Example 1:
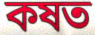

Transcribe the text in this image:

কষত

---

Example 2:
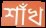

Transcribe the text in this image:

শাঁখ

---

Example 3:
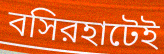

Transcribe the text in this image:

বসিরহাটেই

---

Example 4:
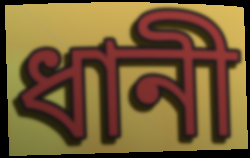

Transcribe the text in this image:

ধানী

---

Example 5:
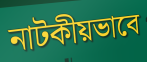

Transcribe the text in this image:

নাটকীয়ভাবে